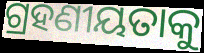
ଗ୍ରହଣୀୟତାକୁ